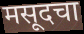
मसूदचा